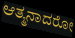
ಆತ್ಮನಾದರೋ